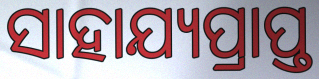
ସାହାଯ୍ୟପ୍ରାପ୍ତ